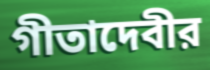
গীতাদেবীর